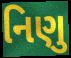
નિણુ